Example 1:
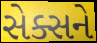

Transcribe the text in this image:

સેક્સને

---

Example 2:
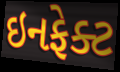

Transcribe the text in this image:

ઇનફેક્ટ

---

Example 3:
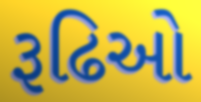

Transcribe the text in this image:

રૂઢિઓ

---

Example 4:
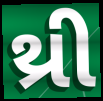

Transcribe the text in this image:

થ્રી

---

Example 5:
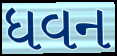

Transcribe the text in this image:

ધવન